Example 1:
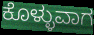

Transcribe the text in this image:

ಕೊಳ್ಳುವಾಗ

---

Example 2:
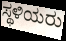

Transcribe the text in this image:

ಸ್ಥಳಿಯರು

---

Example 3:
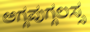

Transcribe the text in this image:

ಅಗ್ಗಪುಗ್ಗಲಸ್ಸ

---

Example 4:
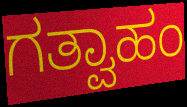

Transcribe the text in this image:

ಗತ್ವಾಹಂ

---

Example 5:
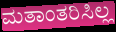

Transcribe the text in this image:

ಮತಾಂತರಿಸಿಲ್ಲ